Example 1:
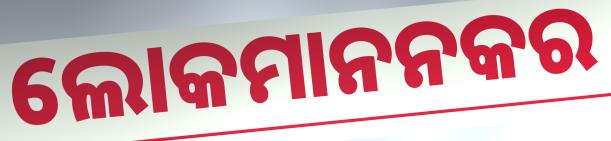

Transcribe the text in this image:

ଲୋକମାନନକର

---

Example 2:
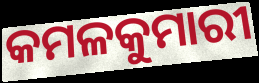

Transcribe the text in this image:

କମଳକୁମାରୀ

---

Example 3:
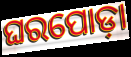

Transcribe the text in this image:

ଘରପୋଡ଼ା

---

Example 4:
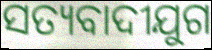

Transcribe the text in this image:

ସତ୍ୟବାଦୀଯୁଗ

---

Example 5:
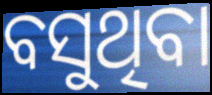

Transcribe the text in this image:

ବସୁଥିବା